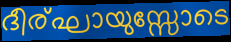
ദീര്ഘായുസ്സോടെ